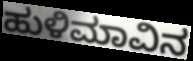
ಹುಳಿಮಾವಿನ